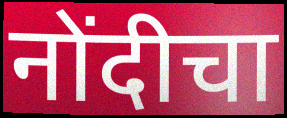
नोंदीचा